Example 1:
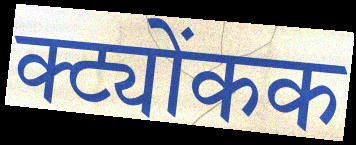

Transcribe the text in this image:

क्ट्योंकक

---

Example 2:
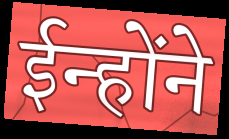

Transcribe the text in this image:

ईन्होंने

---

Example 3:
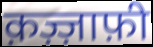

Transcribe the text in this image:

क़ज़्ज़ाफ़ी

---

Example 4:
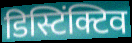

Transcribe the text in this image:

डिस्टिंक्टिव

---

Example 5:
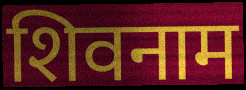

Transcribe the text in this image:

शिवनाम